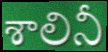
శాలినీ